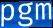
pgm